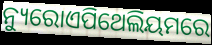
ନ୍ୟୁରୋଏପିଥେଲିୟମରେ